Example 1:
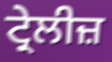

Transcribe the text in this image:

ਟ੍ਰੇਲੀਜ਼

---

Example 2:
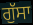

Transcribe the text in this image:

ਗੁੱਸਾ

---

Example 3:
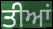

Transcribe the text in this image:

ਤੀਆਂ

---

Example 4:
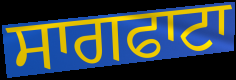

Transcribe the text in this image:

ਸਾਗਫਾਟਾ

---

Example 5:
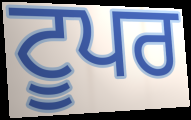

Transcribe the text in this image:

ਟੂਪਰ